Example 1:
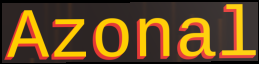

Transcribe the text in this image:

Azonal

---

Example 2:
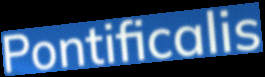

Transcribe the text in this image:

Pontificalis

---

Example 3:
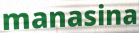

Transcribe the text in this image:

manasina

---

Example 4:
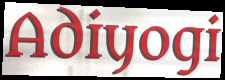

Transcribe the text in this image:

Adiyogi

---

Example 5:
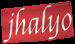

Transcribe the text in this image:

jhalyo